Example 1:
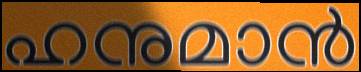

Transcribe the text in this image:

ഹനുമാൻ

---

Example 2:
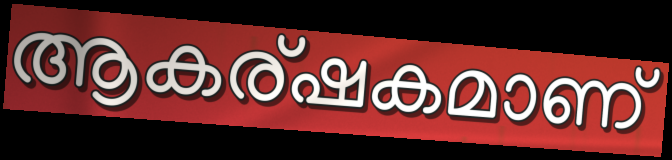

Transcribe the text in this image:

ആകര്ഷകമാണ്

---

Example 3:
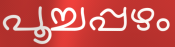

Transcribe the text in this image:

പൂച്ചപ്പഴം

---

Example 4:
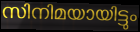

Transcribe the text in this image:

സിനിമയായിട്ടും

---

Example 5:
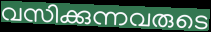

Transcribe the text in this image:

വസിക്കുന്നവരുടെ